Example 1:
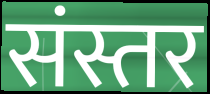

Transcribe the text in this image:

संस्तर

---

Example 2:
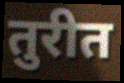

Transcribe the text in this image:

तुरीत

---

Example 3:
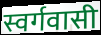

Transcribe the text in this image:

स्वर्गवासी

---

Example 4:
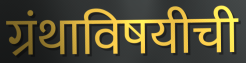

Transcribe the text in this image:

ग्रंथाविषयीची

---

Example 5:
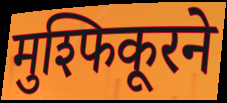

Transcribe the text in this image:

मुश्फिकूरने